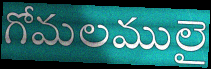
గోమలములై